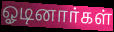
ஓடினார்கள்